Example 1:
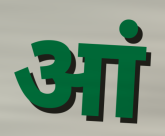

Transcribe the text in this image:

आं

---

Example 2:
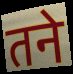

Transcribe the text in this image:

तने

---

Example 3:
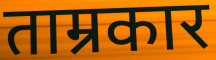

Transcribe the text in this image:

ताम्रकार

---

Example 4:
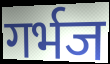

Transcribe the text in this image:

गर्भज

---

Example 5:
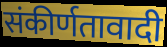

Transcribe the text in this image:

संकीर्णतावादी